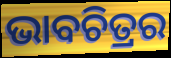
ଭାବଚିତ୍ରର